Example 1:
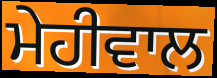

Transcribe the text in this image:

ਮੇਹੀਵਾਲ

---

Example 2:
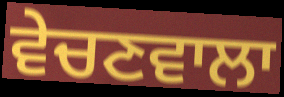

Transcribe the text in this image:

ਵੇਚਣਵਾਲਾ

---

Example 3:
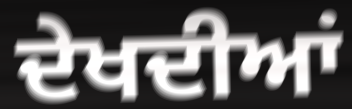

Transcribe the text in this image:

ਦੇਖਦੀਆਂ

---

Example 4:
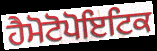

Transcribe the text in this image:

ਹੈਮੋਟੋਪੋਇਟਿਕ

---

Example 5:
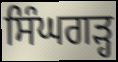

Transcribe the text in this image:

ਸਿੰਘਗੜ੍ਹ